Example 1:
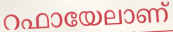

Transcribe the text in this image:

റഫായേലാണ്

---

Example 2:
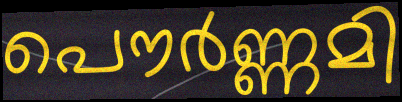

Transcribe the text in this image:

പൌർണ്ണമി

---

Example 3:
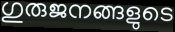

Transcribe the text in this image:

ഗുരുജനങ്ങളുടെ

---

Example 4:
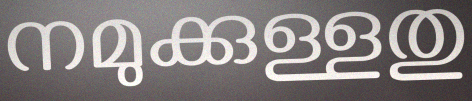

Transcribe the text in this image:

നമുക്കുള്ളതു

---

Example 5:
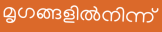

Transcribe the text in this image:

മൃഗങ്ങളിൽനിന്ന്